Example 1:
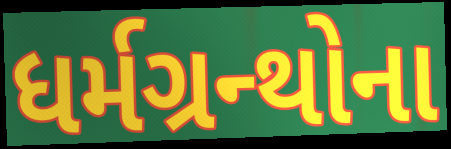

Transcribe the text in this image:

ધર્મગ્રન્થોના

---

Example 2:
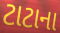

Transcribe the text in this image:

ટાટાના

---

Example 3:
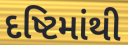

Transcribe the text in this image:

દષ્ટિમાંથી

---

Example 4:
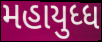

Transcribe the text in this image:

મહાયુધ્ધ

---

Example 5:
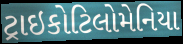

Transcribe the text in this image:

ટ્રાઇકોટિલોમેનિયા